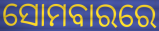
ସୋମବାରରେ